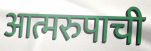
आत्मरुपाची